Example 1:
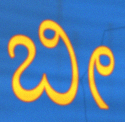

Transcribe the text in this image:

ಬೀ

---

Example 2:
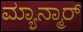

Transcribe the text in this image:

ಮ್ಯಾನ್ಮಾರ್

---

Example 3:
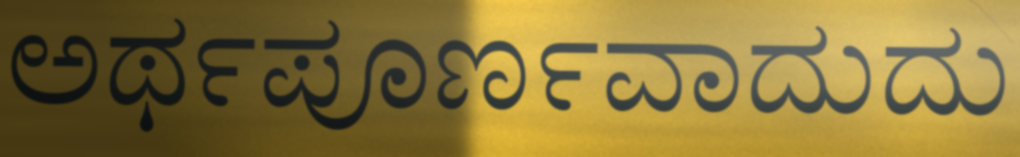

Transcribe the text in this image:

ಅರ್ಥಪೂರ್ಣವಾದುದು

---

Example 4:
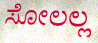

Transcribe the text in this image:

ಸೋಲಲ್ಲ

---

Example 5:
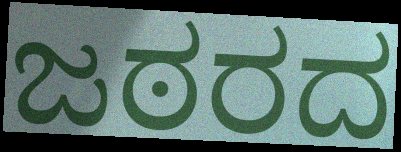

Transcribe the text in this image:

ಜಠರದ